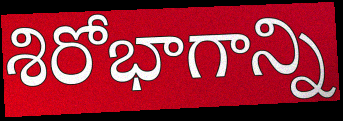
శిరోభాగాన్ని